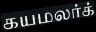
கயமலர்க்